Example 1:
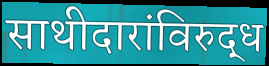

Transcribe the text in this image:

साथीदारांविरुद्ध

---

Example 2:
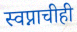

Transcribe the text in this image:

स्वप्नाचीही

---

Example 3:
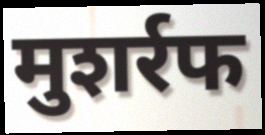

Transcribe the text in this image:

मुशर्रफ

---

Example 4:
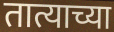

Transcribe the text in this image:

तात्याच्या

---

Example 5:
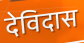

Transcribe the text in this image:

देविदास